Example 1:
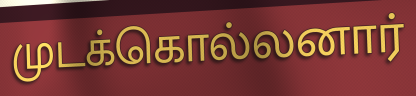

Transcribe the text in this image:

முடக்கொல்லனார்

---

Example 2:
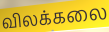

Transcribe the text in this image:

விலக்கலை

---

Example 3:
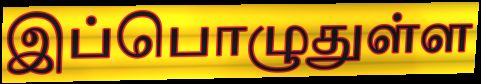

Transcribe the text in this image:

இப்பொழுதுள்ள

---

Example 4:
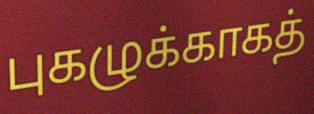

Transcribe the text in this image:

புகழுக்காகத்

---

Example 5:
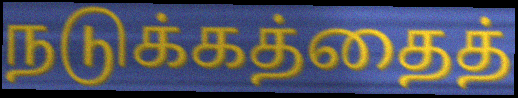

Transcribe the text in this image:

நடுக்கத்தைத்